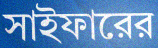
সাইফারের